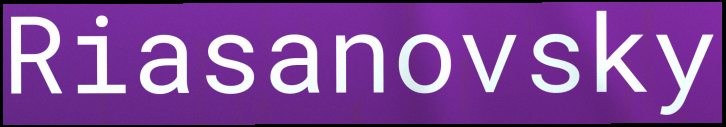
Riasanovsky